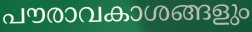
പൗരാവകാശങ്ങളും